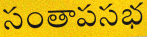
సంతాపసభ